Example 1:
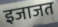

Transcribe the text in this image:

इजाजत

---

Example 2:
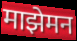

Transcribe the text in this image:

माझेमन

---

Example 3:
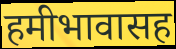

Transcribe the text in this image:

हमीभावासह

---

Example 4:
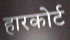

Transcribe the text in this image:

हारकोर्ट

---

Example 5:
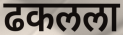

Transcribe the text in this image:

ढकलला